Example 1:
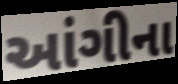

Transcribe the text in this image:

આંગીના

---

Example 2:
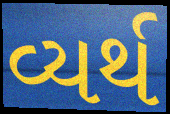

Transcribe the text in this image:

વ્યર્થ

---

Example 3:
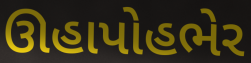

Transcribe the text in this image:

ઊહાપોહભેર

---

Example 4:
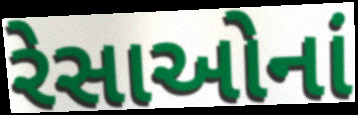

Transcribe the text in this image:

રેસાઓનાં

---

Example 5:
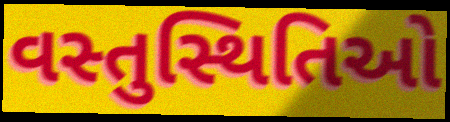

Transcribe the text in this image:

વસ્તુસ્થિતિઓ